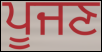
ਪੂਜਣ